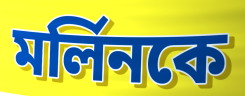
মর্লিনকে